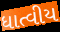
ધાત્વીય